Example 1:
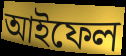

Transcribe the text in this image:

আইফেল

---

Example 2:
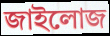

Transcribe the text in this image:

জাইলোজ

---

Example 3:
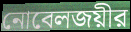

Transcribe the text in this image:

নোবেলজয়ীর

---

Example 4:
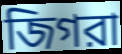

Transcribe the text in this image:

জিগরা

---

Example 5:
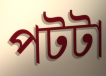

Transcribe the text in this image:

পটটা